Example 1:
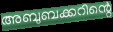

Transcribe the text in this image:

അബുബക്കറിന്റെ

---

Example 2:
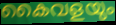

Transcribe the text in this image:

കൈവളയും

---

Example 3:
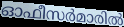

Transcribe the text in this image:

ഓഫീസർമാരിൽ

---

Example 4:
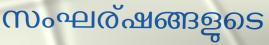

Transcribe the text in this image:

സംഘര്ഷങ്ങളുടെ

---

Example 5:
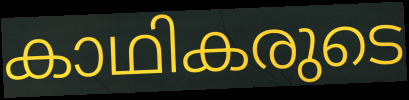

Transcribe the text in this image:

കാഥികരുടെ